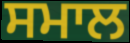
ਸਮਾਲ